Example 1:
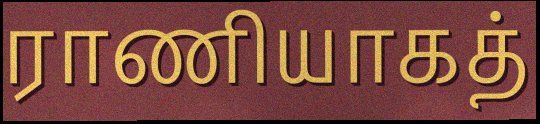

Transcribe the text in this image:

ராணியாகத்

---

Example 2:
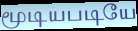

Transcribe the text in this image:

மூடியபடியே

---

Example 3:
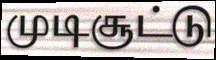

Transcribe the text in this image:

முடிசூட்டு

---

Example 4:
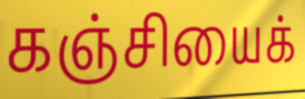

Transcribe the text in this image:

கஞ்சியைக்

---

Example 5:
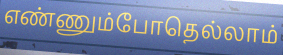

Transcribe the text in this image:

எண்ணும்போதெல்லாம்